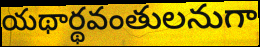
యథార్థవంతులనుగా